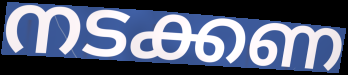
നടക്കണ